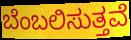
ಬೆಂಬಲಿಸುತ್ತವೆ